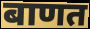
बाणत